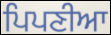
ਪਿਪਣੀਆ